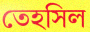
তেহসিল